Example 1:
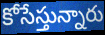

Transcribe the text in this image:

కోసేస్తున్నారు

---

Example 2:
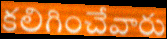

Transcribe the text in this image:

కలిగించేవారు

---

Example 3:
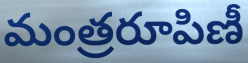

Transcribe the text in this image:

మంత్రరూపిణీ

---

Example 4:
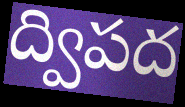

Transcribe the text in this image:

ద్విపద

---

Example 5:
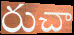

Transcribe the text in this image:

రుచా